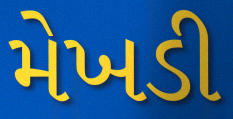
મેખડી